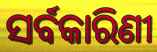
ସର୍ବକାରିଣୀ